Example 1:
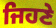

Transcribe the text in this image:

ਜਿਹਣੇ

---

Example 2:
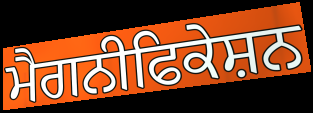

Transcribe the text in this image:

ਮੈਗਨੀਫਿਕੇਸ਼ਨ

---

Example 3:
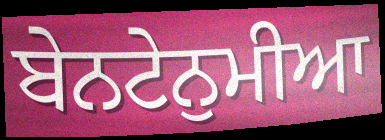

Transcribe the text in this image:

ਬੇਨਟੇਨੁਮੀਆ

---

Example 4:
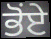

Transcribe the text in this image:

ਭੋਂਏ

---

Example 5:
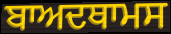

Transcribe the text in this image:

ਬਾਅਦਥਾਮਸ